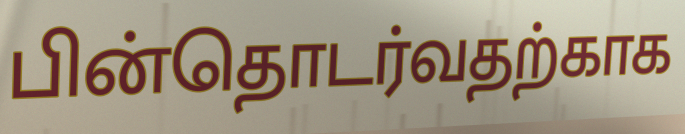
பின்தொடர்வதற்காக